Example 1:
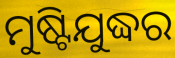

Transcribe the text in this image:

ମୁଷ୍ଟିଯୁଦ୍ଧର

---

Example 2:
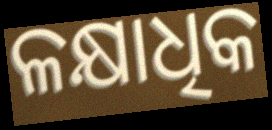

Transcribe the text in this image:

ଳକ୍ଷାଧିକ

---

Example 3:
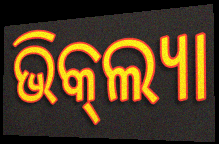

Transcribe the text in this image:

ଭିକ୍‌ଲ୍ୟା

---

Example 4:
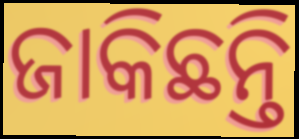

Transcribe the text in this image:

ଜାକିଛନ୍ତି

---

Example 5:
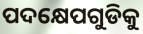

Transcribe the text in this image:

ପଦକ୍ଷେପଗୁଡିକୁ